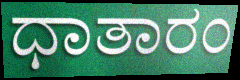
ಧಾತಾರಂ